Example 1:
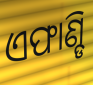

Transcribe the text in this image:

ଏଫାଣ୍ଡି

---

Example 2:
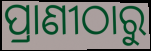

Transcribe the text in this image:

ପ୍ରାଣୀଠାରୁ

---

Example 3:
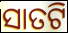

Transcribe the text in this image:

ସାତଟି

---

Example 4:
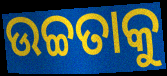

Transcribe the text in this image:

ଉଚ୍ଚତାକୁ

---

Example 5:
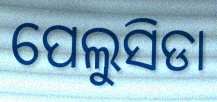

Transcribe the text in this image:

ପେଲୁସିଡା